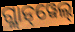
ଗ୍ଲାଡ୍‌ୱେଲ୍